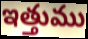
ఇత్తుము